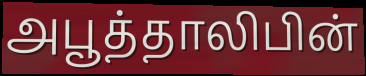
அபூத்தாலிபின்